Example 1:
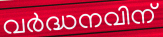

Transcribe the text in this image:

വർദ്ധനവിന്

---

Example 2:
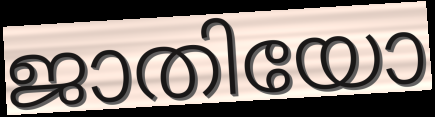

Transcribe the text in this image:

ജാതിയോ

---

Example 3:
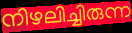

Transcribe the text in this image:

നിഴലിച്ചിരുന്ന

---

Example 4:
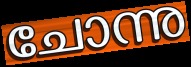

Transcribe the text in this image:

ചോന്നു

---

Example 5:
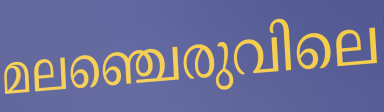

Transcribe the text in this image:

മലഞ്ചെരുവിലെ